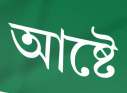
আষ্টে